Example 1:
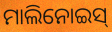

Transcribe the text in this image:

ମାଲିନୋଇସ୍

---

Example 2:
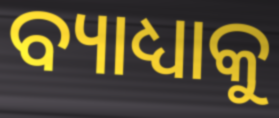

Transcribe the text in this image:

ବ୍ୟାଧ୍ୟାକୁ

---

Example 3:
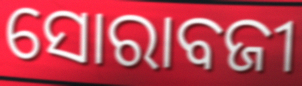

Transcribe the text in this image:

ସୋରାବଜୀ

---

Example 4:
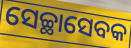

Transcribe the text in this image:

ସେଚ୍ଛାସେବକ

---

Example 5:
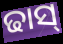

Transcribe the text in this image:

ଢାସ୍